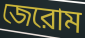
জেরোম